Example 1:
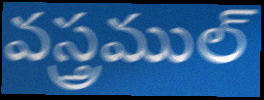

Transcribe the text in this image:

వస్త్రముల్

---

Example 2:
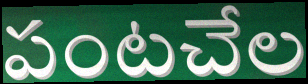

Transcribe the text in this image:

పంటచేల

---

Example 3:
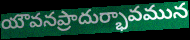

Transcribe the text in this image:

యౌవనప్రాదుర్భావమున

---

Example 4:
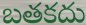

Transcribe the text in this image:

బతకదు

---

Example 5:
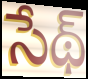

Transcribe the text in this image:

సేథ్